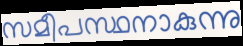
സമീപസ്ഥനാകുന്നു